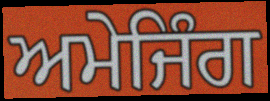
ਅਮੇਜਿੰਗ